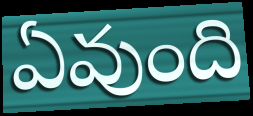
ఏవుంది